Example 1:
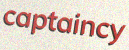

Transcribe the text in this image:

captaincy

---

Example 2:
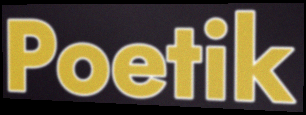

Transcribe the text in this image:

Poetik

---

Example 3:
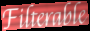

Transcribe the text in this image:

Filterable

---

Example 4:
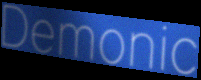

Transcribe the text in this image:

Demonic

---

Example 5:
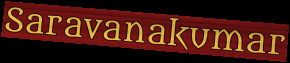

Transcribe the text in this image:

Saravanakumar